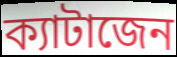
ক্যাটাজেন